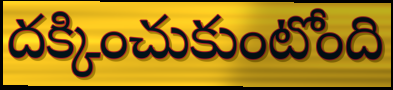
దక్కించుకుంటోంది